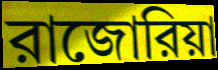
রাজোরিয়া